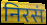
निरसं